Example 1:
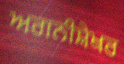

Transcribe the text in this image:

ਅਗਨੀਸ਼ੇਖਰ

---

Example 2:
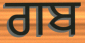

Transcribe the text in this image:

ਗਬ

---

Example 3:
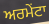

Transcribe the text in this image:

ਅਰਮੇਂਟਾ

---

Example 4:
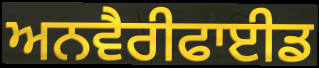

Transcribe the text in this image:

ਅਨਵੈਰੀਫਾਈਡ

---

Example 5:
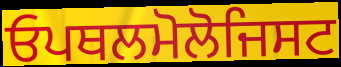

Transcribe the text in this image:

ਓਪਥਲਮੋਲੋਜਿਸਟ